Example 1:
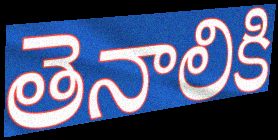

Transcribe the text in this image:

తెనాలికి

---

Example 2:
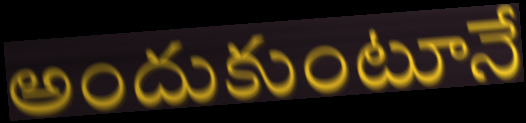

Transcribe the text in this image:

అందుకుంటూనే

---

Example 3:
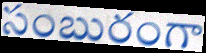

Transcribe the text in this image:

సంబురంగా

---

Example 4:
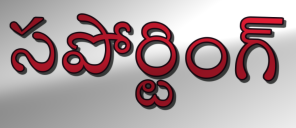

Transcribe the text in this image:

సపోర్టింగ్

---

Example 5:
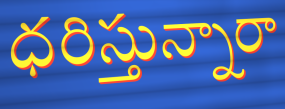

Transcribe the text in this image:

ధరిస్తున్నారా